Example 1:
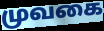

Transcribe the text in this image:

முவகை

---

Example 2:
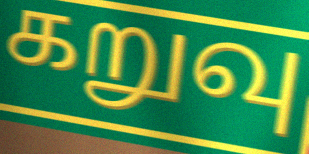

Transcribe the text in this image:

கறுவு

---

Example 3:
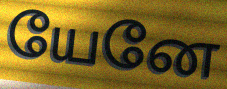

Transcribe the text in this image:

யேனே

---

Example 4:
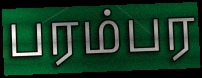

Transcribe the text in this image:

பரம்பர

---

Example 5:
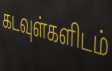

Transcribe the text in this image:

கடவுள்களிடம்